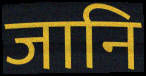
जानि